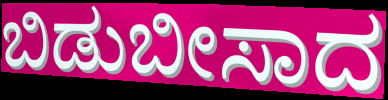
ಬಿಡುಬೀಸಾದ